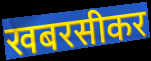
खबरसीकर